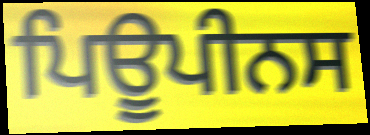
ਪਿਊਪੀਨਸ